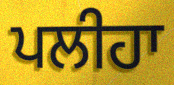
ਪਲੀਹਾ